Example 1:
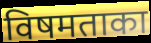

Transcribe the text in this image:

विषमताका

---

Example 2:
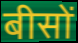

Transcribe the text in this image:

बीसों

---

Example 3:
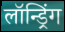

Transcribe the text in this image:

लॉन्ड्रिंग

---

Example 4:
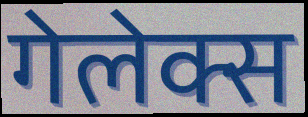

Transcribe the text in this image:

गेलेक्स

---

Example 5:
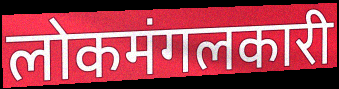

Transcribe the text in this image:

लोकमंगलकारी